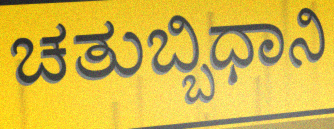
ಚತುಬ್ಬಿಧಾನಿ